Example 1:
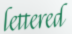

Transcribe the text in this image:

lettered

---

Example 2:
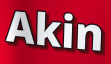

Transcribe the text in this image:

Akin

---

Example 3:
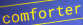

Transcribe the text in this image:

comforter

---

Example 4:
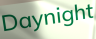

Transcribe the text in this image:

Daynight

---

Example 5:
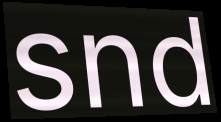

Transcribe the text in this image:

snd